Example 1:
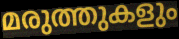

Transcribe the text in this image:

മരുത്തുകളും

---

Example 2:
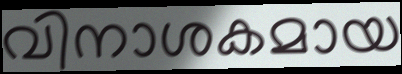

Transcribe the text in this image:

വിനാശകമായ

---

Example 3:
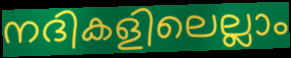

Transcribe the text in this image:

നദികളിലെല്ലാം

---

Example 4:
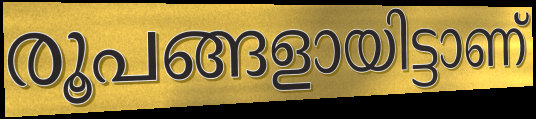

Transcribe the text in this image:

രൂപങ്ങളായിട്ടാണ്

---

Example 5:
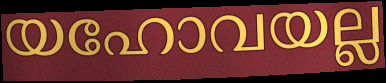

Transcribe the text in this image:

യഹോവയല്ല